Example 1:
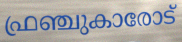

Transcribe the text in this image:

ഫ്രഞ്ചുകാരോട്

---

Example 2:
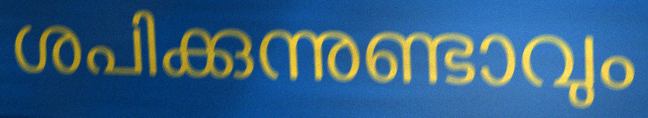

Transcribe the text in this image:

ശപിക്കുന്നുണ്ടാവും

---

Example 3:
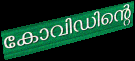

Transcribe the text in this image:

കോവിഡിന്റെ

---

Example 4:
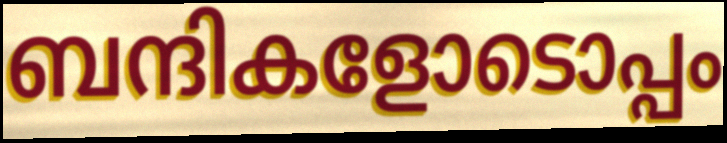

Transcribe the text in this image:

ബന്ദികളോടൊപ്പം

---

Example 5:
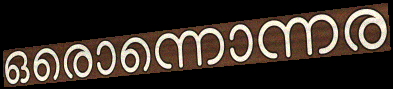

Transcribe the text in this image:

ഒരൊന്നൊന്നര